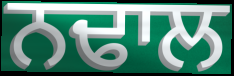
ਨਢਾਲ